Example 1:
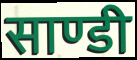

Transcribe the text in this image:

साण्डी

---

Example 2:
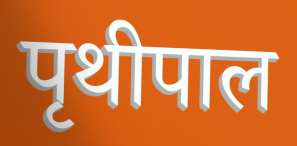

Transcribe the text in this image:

पृथीपाल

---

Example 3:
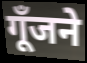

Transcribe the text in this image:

गूँजने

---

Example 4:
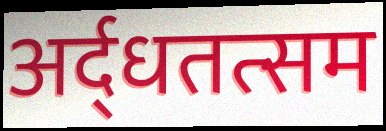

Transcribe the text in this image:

अर्द्धतत्सम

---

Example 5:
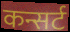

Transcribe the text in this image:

कन्सर्ट